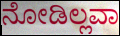
ನೋಡಿಲ್ಲವಾ